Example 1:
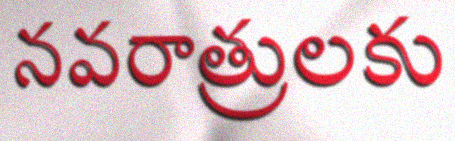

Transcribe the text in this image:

నవరాత్రులకు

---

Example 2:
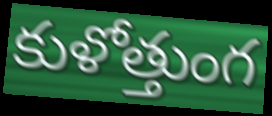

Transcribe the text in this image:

కుళోత్తుంగ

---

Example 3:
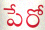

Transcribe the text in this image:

పేరో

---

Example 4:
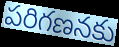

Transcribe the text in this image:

పరిగణనకు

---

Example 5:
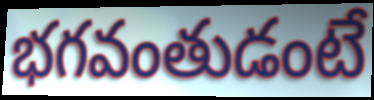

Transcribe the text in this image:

భగవంతుడంటే